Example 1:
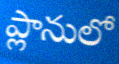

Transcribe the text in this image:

ప్లానులో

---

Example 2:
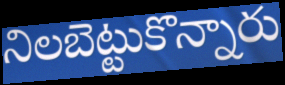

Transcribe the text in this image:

నిలబెట్టుకొన్నారు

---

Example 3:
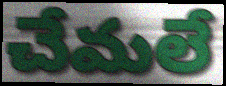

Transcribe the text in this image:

చేమలే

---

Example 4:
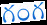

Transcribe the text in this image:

గంగ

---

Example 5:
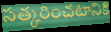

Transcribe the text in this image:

సత్కరించటానికి